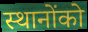
स्थानोंको